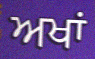
ਅਖਾਂ